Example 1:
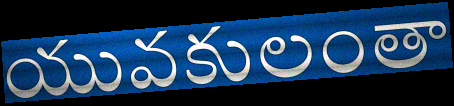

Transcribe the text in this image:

యువకులంతా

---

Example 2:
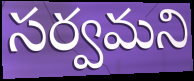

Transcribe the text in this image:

సర్వమని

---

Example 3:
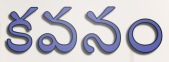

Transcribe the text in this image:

కవనం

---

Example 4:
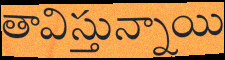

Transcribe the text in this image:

తావిస్తున్నాయి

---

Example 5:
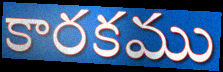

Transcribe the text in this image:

కారకము